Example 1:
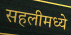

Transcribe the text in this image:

सहलीमध्ये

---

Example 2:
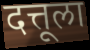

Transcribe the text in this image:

दत्तूला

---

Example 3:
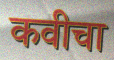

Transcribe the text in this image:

कवीचा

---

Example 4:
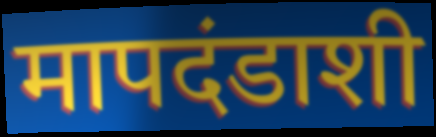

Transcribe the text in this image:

मापदंडाशी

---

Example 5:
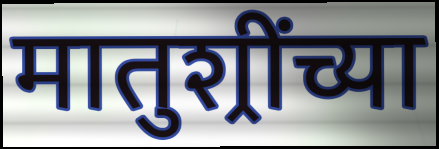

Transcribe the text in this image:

मातुश्रींच्या